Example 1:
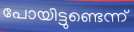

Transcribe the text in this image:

പോയിട്ടുണ്ടെന്ന്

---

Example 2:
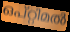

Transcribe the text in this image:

ഒപ്റ്റിമൽ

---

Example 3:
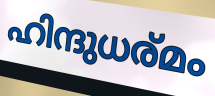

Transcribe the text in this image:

ഹിന്ദുധര്മം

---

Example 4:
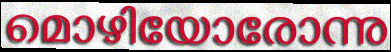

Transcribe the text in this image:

മൊഴിയോരോന്നു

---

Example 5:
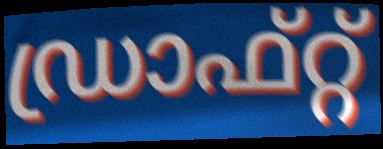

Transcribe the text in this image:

ഡ്രാഫ്റ്റ്